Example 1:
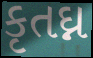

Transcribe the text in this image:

કૃતઘ્ન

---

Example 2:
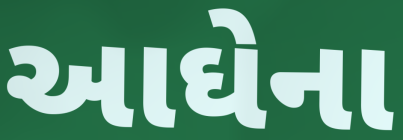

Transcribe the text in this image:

આઘેના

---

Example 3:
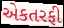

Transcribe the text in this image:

એકતરફી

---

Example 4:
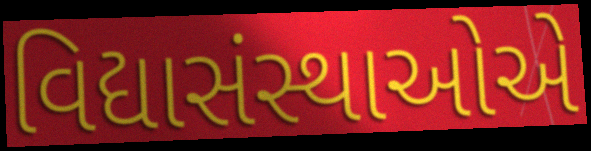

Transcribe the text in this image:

વિદ્યાસંસ્થાઓએ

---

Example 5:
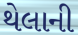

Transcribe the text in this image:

થેલાની